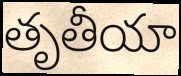
తృతీయా